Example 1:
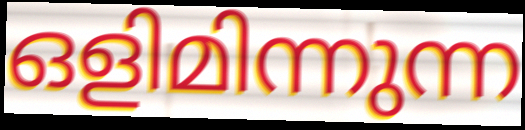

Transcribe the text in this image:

ഒളിമിന്നുന്ന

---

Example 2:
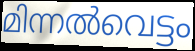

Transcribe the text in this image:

മിന്നൽവെട്ടം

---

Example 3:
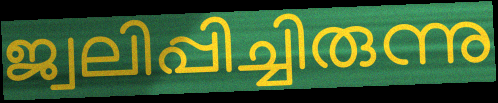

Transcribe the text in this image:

ജ്വലിപ്പിച്ചിരുന്നു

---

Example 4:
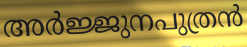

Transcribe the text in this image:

അർജ്ജുനപുത്രൻ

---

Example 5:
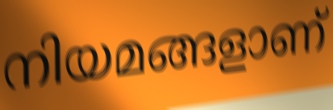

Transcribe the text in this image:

നിയമങ്ങളാണ്